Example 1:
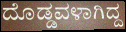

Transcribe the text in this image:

ದೊಡ್ಡವಳಾಗಿದ್ದ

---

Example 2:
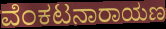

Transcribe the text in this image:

ವೆಂಕಟನಾರಾಯಣ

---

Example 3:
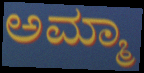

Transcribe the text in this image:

ಅಮ್ಮಾ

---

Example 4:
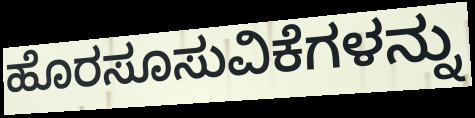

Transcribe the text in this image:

ಹೊರಸೂಸುವಿಕೆಗಳನ್ನು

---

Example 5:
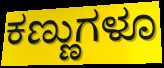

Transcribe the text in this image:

ಕಣ್ಣುಗಳೂ